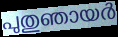
പുതുഞായർ